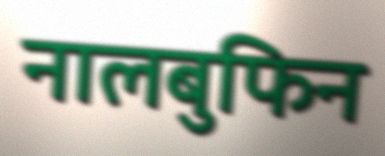
नालबुफिन